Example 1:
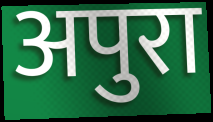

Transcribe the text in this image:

अपुरा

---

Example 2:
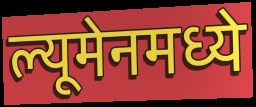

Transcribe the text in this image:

ल्यूमेनमध्ये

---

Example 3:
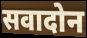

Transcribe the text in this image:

सवादोन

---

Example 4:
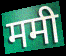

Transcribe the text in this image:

ममी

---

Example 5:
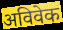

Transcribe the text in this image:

अविवेक